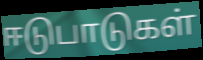
ஈடுபாடுகள்